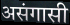
असंगासी